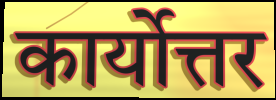
कार्योत्तर